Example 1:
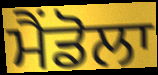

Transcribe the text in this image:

ਮੈਂਡੋਲਾ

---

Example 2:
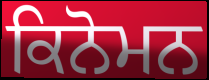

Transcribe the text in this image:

ਕਿਨੋਮਨ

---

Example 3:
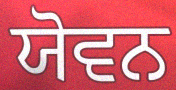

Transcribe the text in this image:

ਯੋਵਨ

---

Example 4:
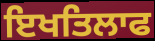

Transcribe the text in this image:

ਇਖਤਿਲਾਫ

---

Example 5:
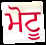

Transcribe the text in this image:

ਮੋਟੂ